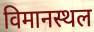
विमानस्थल